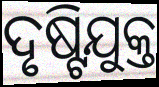
ଦୃଷ୍ଟିଯୁକ୍ତ